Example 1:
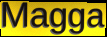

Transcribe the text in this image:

Magga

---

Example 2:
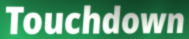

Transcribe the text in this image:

Touchdown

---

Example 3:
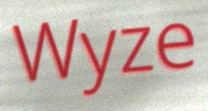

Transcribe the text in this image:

Wyze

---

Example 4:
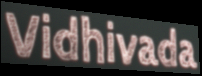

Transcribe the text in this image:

Vidhivada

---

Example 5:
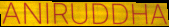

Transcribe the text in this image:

ANIRUDDHA